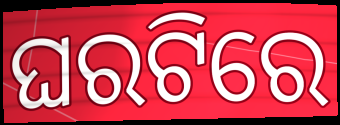
ଘରଟିରେ